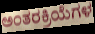
ಅಂತರಕ್ರಿಯೆಗಳ